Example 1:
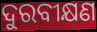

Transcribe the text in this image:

ଦୁରବୀକ୍ଷଣ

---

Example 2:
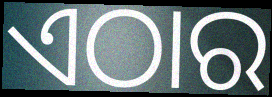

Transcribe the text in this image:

ଏଠାର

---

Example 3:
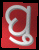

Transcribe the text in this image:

ପ୍ତ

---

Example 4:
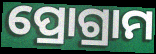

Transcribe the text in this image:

ପ୍ରୋଗ୍ରାମ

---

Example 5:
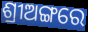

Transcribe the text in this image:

ଶ୍ରୀଅଙ୍ଗରେ